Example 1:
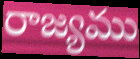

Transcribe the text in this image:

రాజ్యము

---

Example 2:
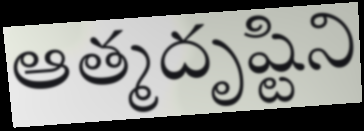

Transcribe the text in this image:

ఆత్మదృష్టిని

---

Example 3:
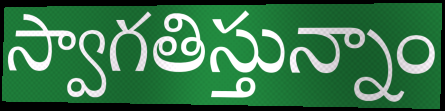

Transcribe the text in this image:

స్వాగతిస్తున్నాం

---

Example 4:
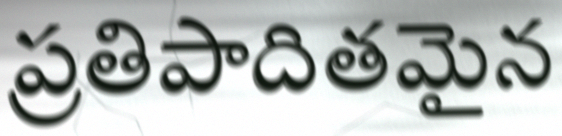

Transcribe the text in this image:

ప్రతిపాదితమైన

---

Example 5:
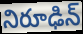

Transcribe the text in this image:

నిరూఢిన్